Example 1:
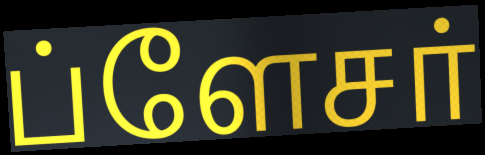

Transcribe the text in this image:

ப்ளேசர்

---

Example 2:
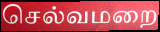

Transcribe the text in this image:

செல்வமறை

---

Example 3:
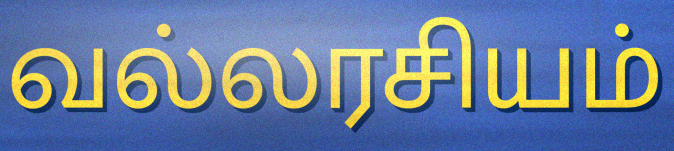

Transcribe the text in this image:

வல்லரசியம்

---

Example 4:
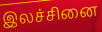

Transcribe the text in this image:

இலச்சினை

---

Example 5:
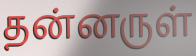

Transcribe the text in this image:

தன்னருள்